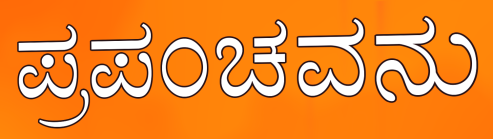
ಪ್ರಪಂಚವನು